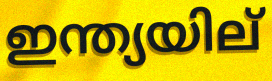
ഇന്ത്യയില്